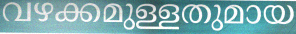
വഴക്കമുള്ളതുമായ